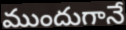
ముందుగానే